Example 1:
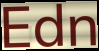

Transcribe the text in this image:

Edn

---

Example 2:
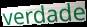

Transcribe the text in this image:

verdade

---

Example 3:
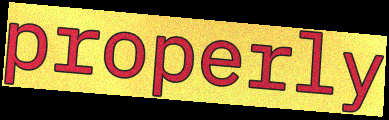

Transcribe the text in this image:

properly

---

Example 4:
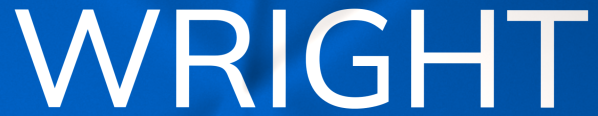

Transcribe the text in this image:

WRIGHT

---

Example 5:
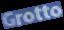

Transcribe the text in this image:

Grotto